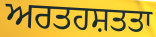
ਅਰਤਹਸ਼ਤਤਾ